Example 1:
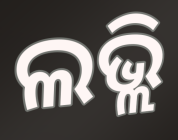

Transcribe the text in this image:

ଲଭ୍ଲି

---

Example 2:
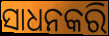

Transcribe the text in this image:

ସାଧନକରି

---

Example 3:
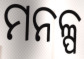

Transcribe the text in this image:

ମନଳ୍ପ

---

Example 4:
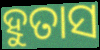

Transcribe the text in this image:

ହୁତାସ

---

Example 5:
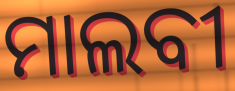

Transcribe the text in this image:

ମାଲବୀ